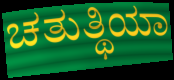
ಚತುತ್ಥಿಯಾ